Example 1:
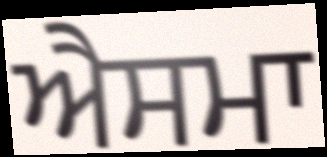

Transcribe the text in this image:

ਐਸਮਾ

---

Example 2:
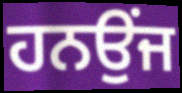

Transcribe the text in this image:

ਹਨਉਂਜ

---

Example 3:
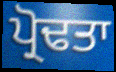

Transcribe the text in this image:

ਪ੍ਰੋਢਤਾ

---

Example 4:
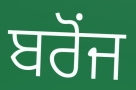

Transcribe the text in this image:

ਬਰੋਂਜ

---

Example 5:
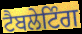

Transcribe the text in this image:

ਟੈਬਲੇਟਿੰਗ